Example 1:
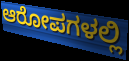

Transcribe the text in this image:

ಆರೋಪಗಳಲ್ಲಿ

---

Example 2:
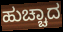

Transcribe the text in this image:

ಹುಚ್ಚಾದ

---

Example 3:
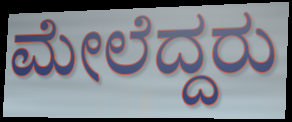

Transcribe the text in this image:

ಮೇಲೆದ್ದರು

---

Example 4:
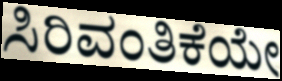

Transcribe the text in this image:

ಸಿರಿವಂತಿಕೆಯೇ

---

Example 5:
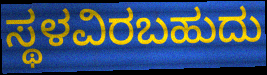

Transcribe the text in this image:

ಸ್ಥಳವಿರಬಹುದು